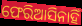
ଫେରିଆସିନାହିଁ